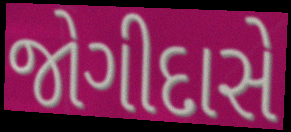
જોગીદાસે